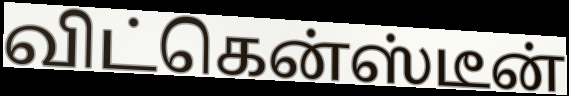
விட்கென்ஸ்டீன்